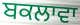
ਬਕਲਾਵਾ